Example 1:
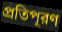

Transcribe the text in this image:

প্রতিপূরণ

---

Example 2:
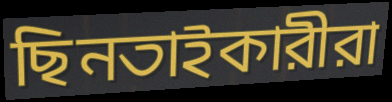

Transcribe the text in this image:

ছিনতাইকারীরা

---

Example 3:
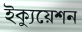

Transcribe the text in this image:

ইক্যুয়েশন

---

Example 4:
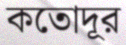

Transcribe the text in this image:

কতোদূর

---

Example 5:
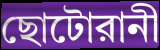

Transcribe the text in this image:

ছোটোরানী